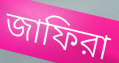
জাফিরা